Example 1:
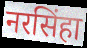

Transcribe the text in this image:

नरसिंहा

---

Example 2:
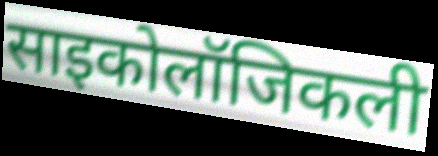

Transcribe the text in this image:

साइकोलॉजिकली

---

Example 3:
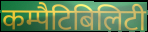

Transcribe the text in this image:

कम्पैटिबिलिटी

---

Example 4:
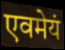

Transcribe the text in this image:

एवमेयं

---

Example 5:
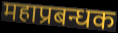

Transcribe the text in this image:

महाप्रबन्धक